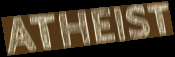
ATHEIST